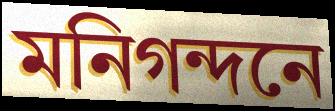
মনিগন্দনে